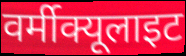
वर्मीक्यूलाइट